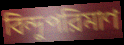
বিন্দুপরিমাণ